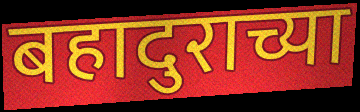
बहादुराच्या